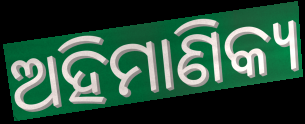
ଅହିମାଣିକ୍ୟ